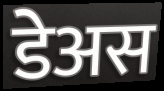
डेअस